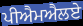
ਪੀਐਮਐਲਏ